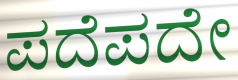
ಪದೆಪದೇ